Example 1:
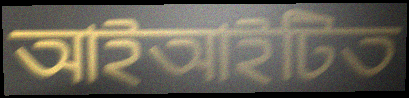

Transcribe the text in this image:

আইআইটিত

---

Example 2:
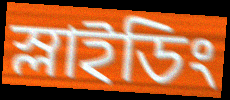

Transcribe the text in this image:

স্লাইডিং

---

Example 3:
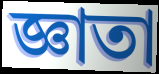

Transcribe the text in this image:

জ্ঞাতা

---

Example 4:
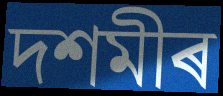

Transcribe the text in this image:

দশমীৰ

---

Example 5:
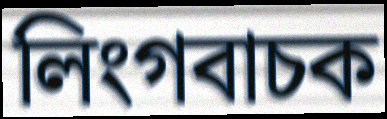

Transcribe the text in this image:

লিংগবাচক